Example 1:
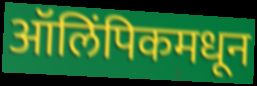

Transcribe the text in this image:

ऑलिंपिकमधून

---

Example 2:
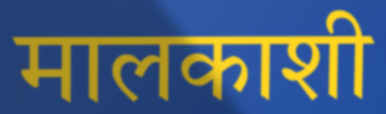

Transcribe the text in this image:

मालकाशी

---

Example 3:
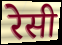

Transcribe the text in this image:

रेसी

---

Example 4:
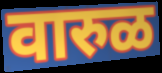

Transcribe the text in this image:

वारुळ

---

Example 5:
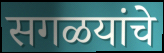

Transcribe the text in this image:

सगळयांचे